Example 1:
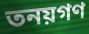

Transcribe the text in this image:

তনয়গণ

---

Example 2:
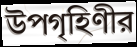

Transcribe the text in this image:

উপগৃহিণীর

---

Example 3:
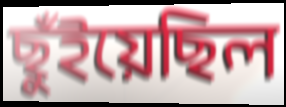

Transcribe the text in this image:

ছুঁইয়েছিল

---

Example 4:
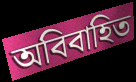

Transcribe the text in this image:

অবিবাহিত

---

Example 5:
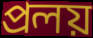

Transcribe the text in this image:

প্রলয়